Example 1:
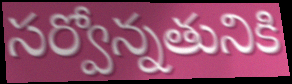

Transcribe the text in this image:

సర్వోన్నతునికి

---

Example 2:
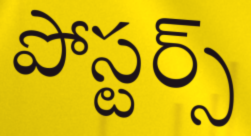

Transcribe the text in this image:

పోస్టర్స్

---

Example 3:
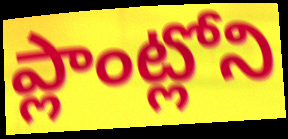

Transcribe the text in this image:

ప్లాంట్లోని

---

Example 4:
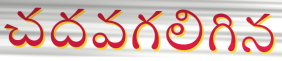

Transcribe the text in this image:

చదవగలిగిన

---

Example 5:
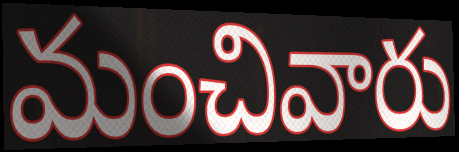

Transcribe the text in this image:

మంచివారు